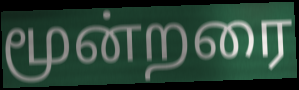
மூன்றரை